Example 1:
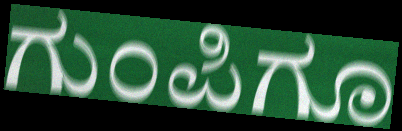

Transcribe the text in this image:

ಗುಂಪಿಗೂ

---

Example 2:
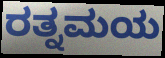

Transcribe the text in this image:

ರತ್ನಮಯ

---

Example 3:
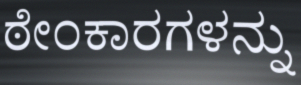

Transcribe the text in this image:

ಠೇಂಕಾರಗಳನ್ನು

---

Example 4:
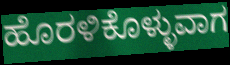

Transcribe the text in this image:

ಹೊರಳಿಕೊಳ್ಳುವಾಗ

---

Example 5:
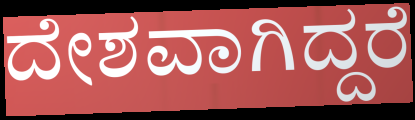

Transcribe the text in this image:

ದೇಶವಾಗಿದ್ದರೆ